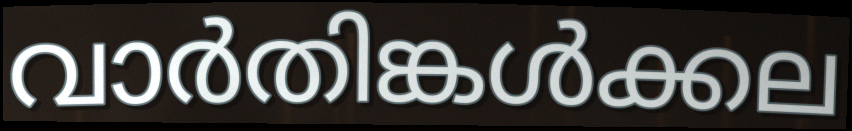
വാർതിങ്കൾക്കല